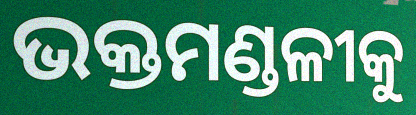
ଭକ୍ତମଣ୍ଡଳୀକୁ